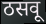
ठसवू